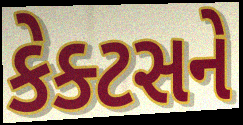
કેક્ટસને